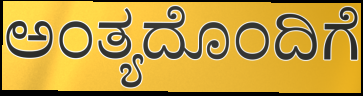
ಅಂತ್ಯದೊಂದಿಗೆ